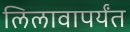
लिलावापर्यंत